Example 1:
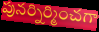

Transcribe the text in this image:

పునర్నిర్మించగా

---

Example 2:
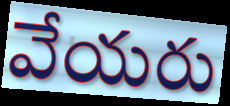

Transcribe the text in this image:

వేయరు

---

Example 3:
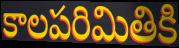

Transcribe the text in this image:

కాలపరిమితికి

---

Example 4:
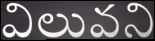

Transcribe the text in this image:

విలువని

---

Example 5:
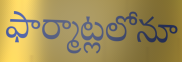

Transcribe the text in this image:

ఫార్మాట్లలోనూ